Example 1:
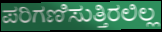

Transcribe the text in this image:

ಪರಿಗಣಿಸುತ್ತಿರಲಿಲ್ಲ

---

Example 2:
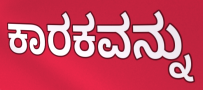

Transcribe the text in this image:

ಕಾರಕವನ್ನು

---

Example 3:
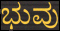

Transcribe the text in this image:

ಭುವು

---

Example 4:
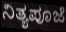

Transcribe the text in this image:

ನಿತ್ಯಪೂಜೆ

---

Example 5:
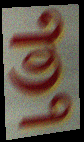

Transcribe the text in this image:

ತ್ತೆ